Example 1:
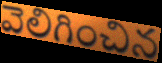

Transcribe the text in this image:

వెలిగించిన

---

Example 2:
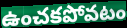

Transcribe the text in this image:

ఉంచకపోవటం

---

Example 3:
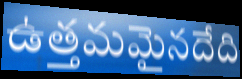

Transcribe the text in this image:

ఉత్తమమైనదేది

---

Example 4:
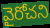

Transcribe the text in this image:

వైరోచని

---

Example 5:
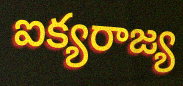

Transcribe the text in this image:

ఐక్యరాజ్య